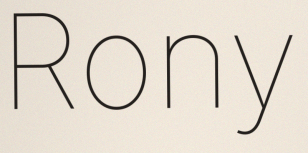
Rony